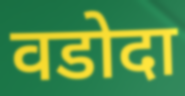
वडोदा